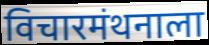
विचारमंथनाला